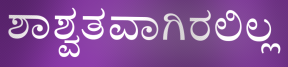
ಶಾಶ್ವತವಾಗಿರಲಿಲ್ಲ